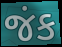
જંક